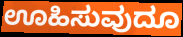
ಊಹಿಸುವುದೂ